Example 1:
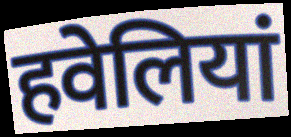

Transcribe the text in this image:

हवेलियां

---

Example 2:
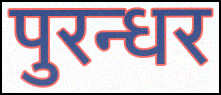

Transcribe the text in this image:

पुरन्धर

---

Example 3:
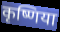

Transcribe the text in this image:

कृष्णिया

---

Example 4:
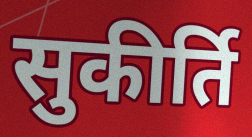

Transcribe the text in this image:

सुकीर्ति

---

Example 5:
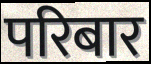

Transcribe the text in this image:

परिबार